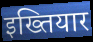
इख्तियार